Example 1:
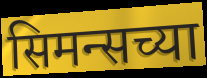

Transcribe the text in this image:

सिमन्सच्या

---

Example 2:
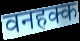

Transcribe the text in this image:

वनहक्क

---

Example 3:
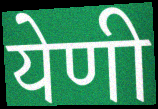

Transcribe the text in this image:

येणी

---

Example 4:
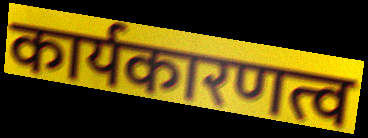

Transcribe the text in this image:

कार्यकारणत्व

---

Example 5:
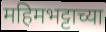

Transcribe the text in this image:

महिमभट्टाच्या